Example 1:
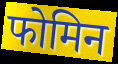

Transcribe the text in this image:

फोमिन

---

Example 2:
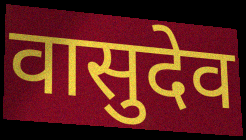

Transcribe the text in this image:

वासुदेव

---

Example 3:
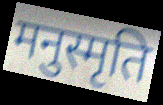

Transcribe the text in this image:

मनुस्मृति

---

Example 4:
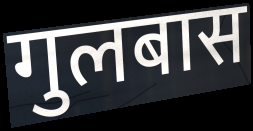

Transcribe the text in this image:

गुलबास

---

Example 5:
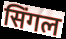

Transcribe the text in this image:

सिंगल